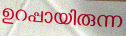
ഉറപ്പായിരുന്ന